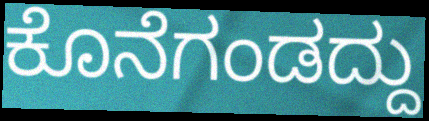
ಕೊನೆಗಂಡದ್ದು